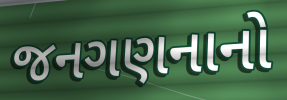
જનગણનાનો